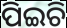
ପିଇଚି